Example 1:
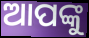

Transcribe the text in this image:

ଆପଙ୍କୁ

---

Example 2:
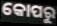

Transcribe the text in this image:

କୋପରୁ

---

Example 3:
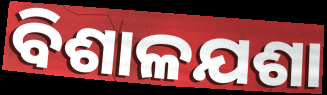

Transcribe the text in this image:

ବିଶାଳଯଶା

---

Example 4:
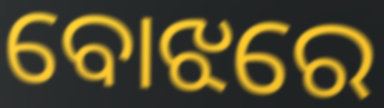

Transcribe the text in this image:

ବୋଝରେ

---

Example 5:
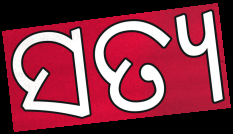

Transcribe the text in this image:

ସତ୍ୟ